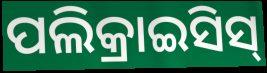
ପଲିକ୍ରାଇସିସ୍